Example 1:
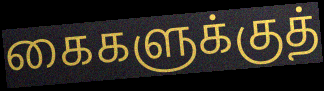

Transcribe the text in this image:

கைகளுக்குத்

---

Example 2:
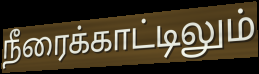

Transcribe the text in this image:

நீரைக்காட்டிலும்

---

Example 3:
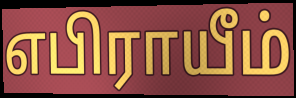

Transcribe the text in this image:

எபிராயீம்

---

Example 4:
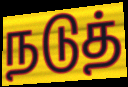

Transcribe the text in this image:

நடுத்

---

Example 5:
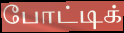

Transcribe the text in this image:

போட்டிக்